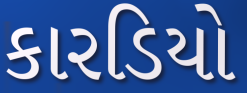
કારડિયો